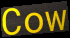
Cow